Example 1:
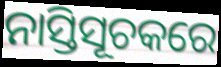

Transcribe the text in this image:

ନାସ୍ତିସୂଚକରେ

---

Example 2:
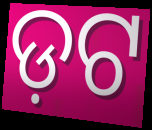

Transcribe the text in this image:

ଡ଼ଟ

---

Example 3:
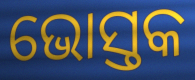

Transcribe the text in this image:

ଭୋସ୍ତକ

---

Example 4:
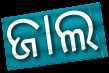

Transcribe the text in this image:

ଜାଲ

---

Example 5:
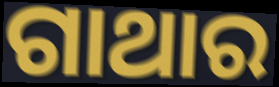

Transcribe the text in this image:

ଗାଥାର